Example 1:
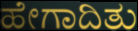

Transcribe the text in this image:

ಹೇಗಾದಿತು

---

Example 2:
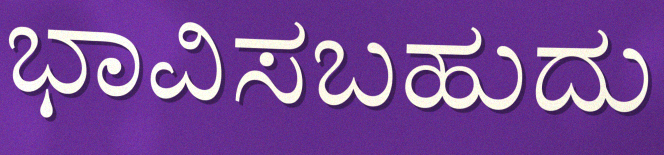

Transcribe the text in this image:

ಭಾವಿಸಬಹುದು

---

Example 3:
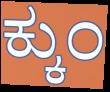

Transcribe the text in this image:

ಕ್ಕುಂ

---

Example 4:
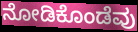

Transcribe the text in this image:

ನೋಡಿಕೊಂಡೆವು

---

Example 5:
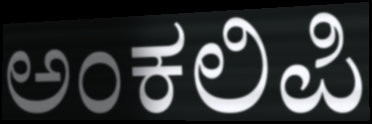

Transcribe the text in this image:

ಅಂಕಲಿಪಿ